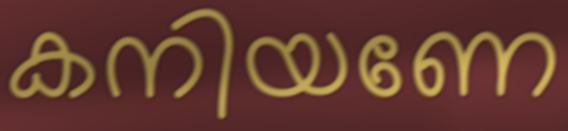
കനിയണേ